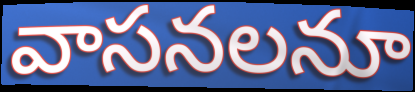
వాసనలనూ